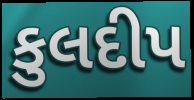
કુલદીપ